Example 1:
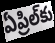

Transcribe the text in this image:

ఏప్రిల్‌కు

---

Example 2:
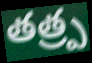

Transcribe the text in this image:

తత్ర్ప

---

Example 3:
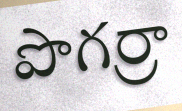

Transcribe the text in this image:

పొగర్రా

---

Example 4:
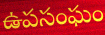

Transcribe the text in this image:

ఉపసంఘం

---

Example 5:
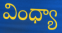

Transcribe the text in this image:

వింధ్యా